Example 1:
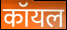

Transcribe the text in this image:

कॉयल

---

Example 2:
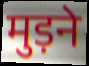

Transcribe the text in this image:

मुड़ने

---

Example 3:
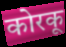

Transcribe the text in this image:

कोरकू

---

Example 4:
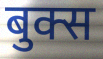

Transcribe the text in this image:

बुक्स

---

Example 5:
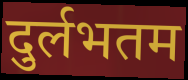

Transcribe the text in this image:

दुर्लभतम